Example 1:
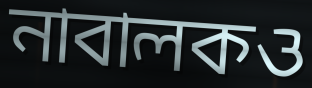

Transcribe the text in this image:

নাবালকও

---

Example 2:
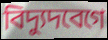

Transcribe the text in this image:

বিদ্যুদবেগে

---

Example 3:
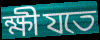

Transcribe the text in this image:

ক্ষীযতে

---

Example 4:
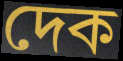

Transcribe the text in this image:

দেক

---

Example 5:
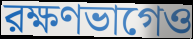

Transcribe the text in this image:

রক্ষণভাগেও